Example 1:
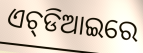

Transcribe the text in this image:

ଏଚ୍‌ଡିଆଇରେ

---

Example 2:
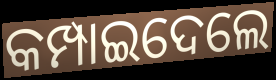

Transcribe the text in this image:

କମ୍ପାଇଦେଲେ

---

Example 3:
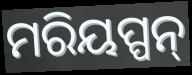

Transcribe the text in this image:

ମରିୟପ୍ପନ୍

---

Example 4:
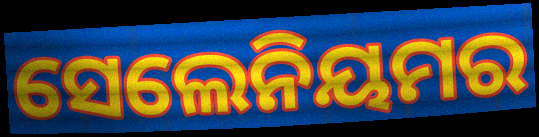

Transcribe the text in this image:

ସେଲେନିୟମର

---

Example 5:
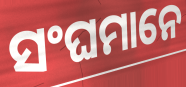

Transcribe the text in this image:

ସଂଘମାନେ